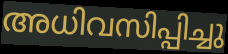
അധിവസിപ്പിച്ചു